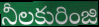
నీలకురింజి